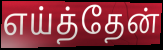
எய்த்தேன்